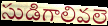
సుడిగాలివలె